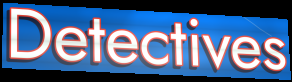
Detectives